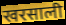
खरसाली